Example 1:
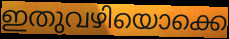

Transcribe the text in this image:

ഇതുവഴിയൊക്കെ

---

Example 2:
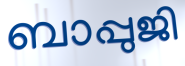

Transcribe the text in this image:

ബാപ്പുജി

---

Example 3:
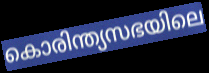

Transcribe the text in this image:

കൊരിന്ത്യസഭയിലെ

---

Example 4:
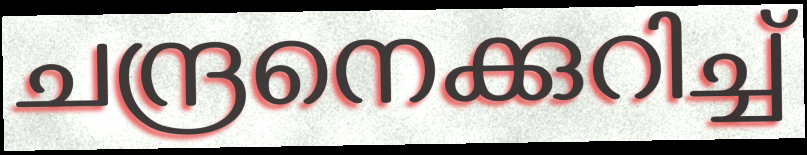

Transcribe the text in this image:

ചന്ദ്രനെക്കുറിച്ച്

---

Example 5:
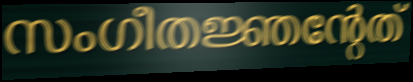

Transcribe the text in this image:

സംഗീതജ്ഞന്റേത്